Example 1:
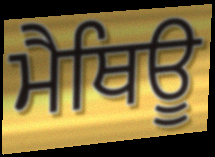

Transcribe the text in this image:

ਮੈਥਿਊ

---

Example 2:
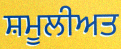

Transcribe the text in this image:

ਸ਼ਮੂਲੀਅਤ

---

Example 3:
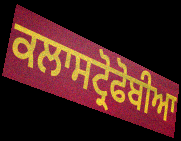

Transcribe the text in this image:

ਕਲਾਸਟ੍ਰੋਫੋਬੀਆ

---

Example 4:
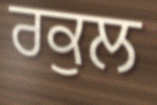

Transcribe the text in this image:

ਰਕੁਲ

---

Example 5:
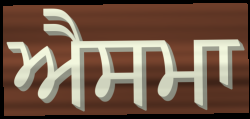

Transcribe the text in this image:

ਐਸਮਾ